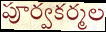
పూర్వకర్మల